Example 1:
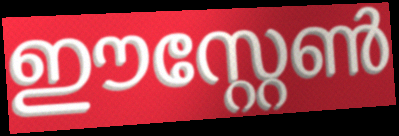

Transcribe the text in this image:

ഈസ്റ്റേൺ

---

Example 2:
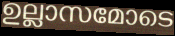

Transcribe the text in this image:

ഉല്ലാസമോടെ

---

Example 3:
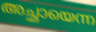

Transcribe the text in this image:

അച്ഛായെന്ന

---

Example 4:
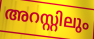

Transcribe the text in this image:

അറസ്റ്റിലും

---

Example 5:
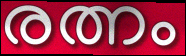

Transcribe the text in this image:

രത്നം